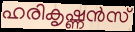
ഹരികൃഷ്ണൻസ്